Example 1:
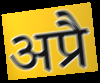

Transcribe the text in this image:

अप्रै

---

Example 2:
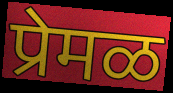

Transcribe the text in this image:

प्रेमळ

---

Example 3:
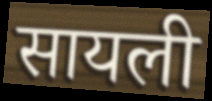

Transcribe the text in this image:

सायली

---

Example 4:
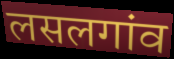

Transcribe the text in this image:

लसलगांव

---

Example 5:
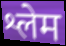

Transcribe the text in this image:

श्लेम